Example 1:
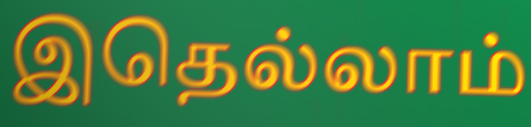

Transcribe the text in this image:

இதெல்லாம்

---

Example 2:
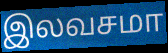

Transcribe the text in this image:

இலவசமா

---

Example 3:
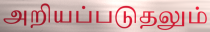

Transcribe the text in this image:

அறியப்படுதலும்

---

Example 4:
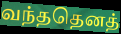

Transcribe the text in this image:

வந்ததெனத்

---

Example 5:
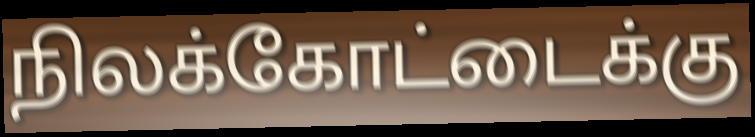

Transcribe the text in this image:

நிலக்கோட்டைக்கு